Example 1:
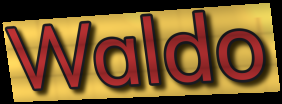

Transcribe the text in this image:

Waldo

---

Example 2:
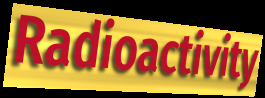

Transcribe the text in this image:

Radioactivity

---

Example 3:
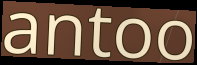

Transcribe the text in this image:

antoo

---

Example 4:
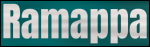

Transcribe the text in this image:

Ramappa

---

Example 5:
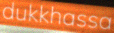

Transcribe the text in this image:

dukkhassa